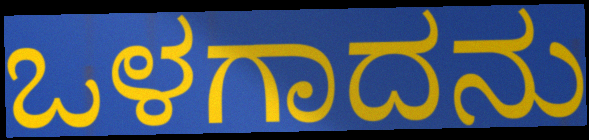
ಒಳಗಾದನು